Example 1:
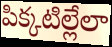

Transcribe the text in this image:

పిక్కటిల్లేలా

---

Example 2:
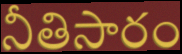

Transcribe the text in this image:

నీతిసారం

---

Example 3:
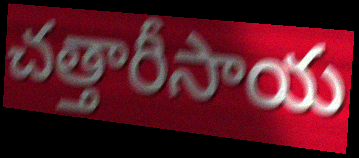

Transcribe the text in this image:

చత్తారీసాయ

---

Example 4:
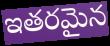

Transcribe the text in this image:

ఇతరమైన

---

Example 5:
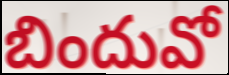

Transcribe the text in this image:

బిందువో